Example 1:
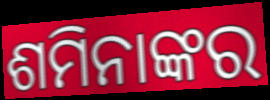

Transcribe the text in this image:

ଶମିନାଙ୍କର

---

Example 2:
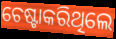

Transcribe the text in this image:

ଚେଷ୍ଟାକରିଥିଲେ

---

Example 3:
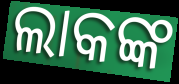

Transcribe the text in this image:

ଲାକଙ୍କ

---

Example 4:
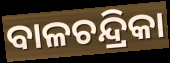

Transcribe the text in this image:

ବାଳଚନ୍ଦ୍ରିକା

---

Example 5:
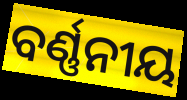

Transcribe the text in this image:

ବର୍ଣ୍ଣନୀୟ